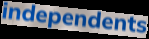
independents